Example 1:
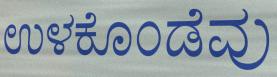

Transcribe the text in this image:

ಉಳಕೊಂಡೆವು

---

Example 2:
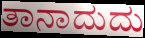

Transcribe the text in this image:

ತಾನಾದುದು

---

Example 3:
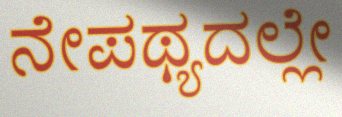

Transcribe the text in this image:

ನೇಪಥ್ಯದಲ್ಲೇ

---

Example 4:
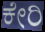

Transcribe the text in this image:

ಕೇರಿ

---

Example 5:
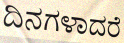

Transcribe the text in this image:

ದಿನಗಳಾದರೆ